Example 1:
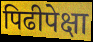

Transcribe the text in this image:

पिढीपेक्षा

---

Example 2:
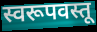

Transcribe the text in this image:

स्वरूपवस्तू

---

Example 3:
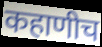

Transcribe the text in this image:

कहाणीच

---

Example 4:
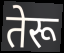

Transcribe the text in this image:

तेरू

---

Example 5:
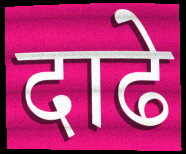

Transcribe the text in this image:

दाढे